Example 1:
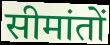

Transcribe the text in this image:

सीमांतों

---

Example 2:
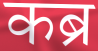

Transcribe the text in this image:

कब्र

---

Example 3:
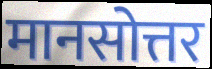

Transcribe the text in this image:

मानसोत्तर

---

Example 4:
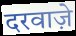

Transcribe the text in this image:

दरवाज़े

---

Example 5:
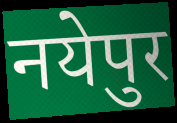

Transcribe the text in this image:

नयेपुर